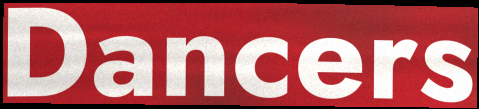
Dancers